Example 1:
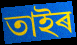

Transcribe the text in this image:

তাইৰ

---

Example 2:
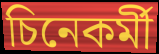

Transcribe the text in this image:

চিনেকৰ্মী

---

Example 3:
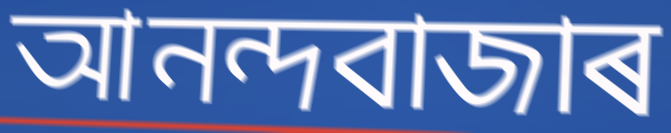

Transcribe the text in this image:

আনন্দবাজাৰ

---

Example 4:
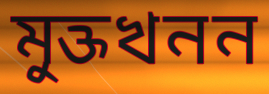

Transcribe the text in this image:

মুক্তখনন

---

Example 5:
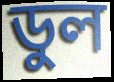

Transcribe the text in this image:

ডুল